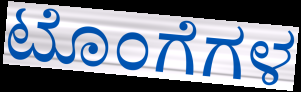
ಟೊಂಗೆಗಳ